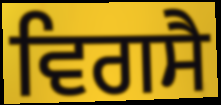
ਵਿਗਸੈ